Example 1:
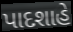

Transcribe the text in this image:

પાદશાહે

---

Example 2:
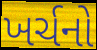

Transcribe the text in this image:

ખર્ચનો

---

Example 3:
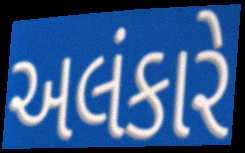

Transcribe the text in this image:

અલંકારે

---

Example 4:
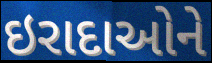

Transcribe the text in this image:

ઇરાદાઓને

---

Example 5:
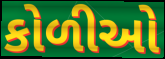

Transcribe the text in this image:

કોળીઓ